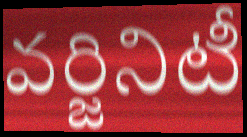
వర్జినిటీ